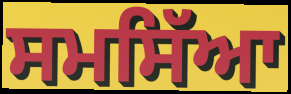
ਸਮਸਿੱਆ